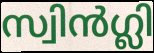
സ്വിൻഗ്ലി